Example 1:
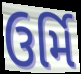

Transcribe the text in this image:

ઉર્મિ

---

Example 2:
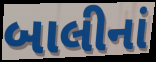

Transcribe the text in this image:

બાલીનાં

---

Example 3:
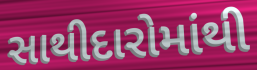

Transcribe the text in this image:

સાથીદારોમાંથી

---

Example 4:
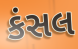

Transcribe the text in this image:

કંસલ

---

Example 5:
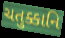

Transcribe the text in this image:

ચતુક્કાનિ